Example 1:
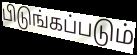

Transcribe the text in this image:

பிடுங்கப்படும்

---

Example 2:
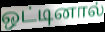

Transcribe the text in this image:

ஒட்டினால்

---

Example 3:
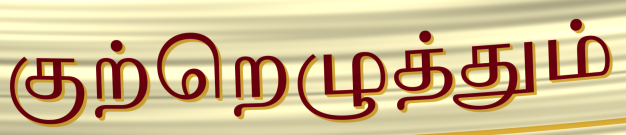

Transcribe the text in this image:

குற்றெழுத்தும்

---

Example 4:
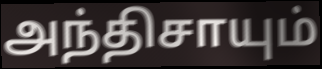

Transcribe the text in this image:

அந்திசாயும்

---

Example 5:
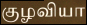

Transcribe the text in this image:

குழவியா